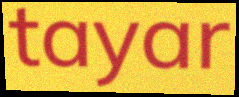
tayar